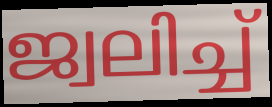
ജ്വലിച്ച്